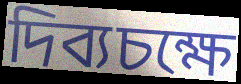
দিব্যচক্ষে